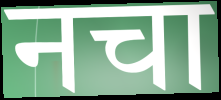
नचा